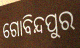
ଗୋବିନ୍ଦପୁର